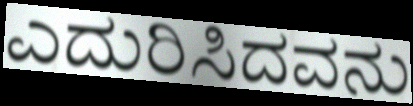
ಎದುರಿಸಿದವನು